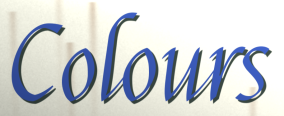
Colours